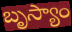
బృస్యాం